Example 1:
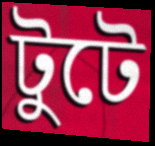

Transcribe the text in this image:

টুটে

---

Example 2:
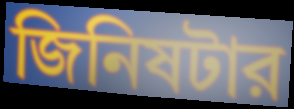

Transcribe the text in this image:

জিনিষটার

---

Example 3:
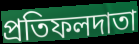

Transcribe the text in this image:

প্রতিফলদাতা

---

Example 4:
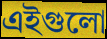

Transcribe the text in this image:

এইগুলো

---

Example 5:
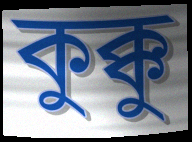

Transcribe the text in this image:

কুক্কু